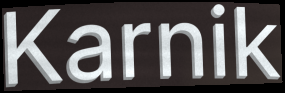
Karnik